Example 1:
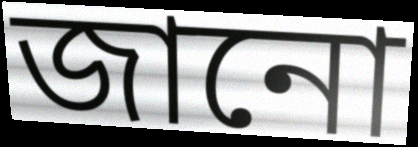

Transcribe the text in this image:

জানো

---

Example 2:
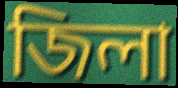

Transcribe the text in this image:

জিলা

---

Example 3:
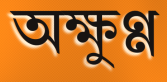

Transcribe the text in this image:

অক্ষুণ্ণ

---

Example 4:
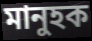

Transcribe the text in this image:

মানুহক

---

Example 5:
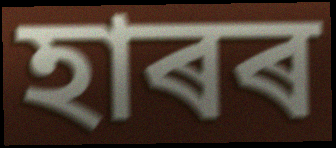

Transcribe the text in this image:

হাৰৰ